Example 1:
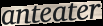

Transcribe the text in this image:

anteater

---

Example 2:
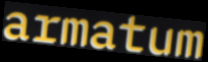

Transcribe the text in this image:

armatum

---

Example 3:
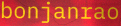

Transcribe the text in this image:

bonjanrao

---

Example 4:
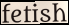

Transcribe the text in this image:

fetish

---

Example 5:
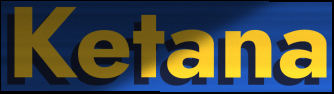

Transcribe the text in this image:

Ketana